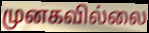
முனகவில்லை